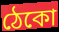
ঠেকো